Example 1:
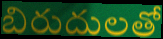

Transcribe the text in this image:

బిరుదులతో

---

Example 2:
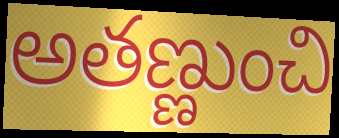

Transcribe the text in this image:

అతణ్ణుంచి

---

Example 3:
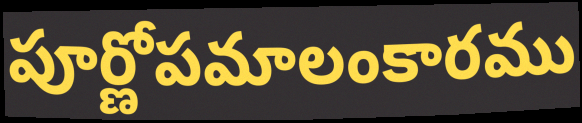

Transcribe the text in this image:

పూర్ణోపమాలంకారము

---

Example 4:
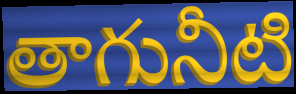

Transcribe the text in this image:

తాగునీటి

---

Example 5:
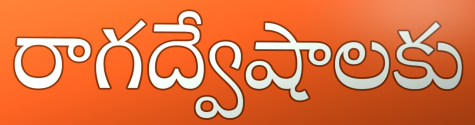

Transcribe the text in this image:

రాగద్వేషాలకు